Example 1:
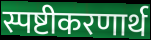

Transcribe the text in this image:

स्पष्टीकरणार्थ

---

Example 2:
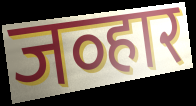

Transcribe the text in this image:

जव्हार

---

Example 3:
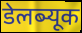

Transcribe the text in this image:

डेलब्ऱ्यूक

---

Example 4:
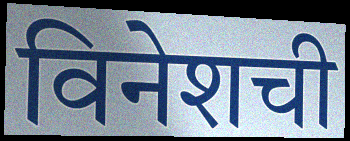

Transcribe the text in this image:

विनेशची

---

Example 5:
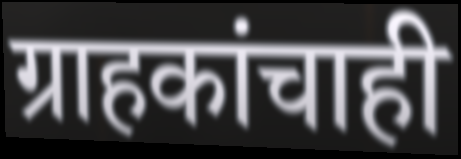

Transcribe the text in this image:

ग्राहकांचाही